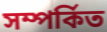
সম্পর্কিত